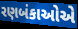
રણબંકાઓએ